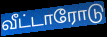
வீட்டாரோடு